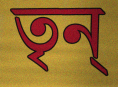
তৃন্